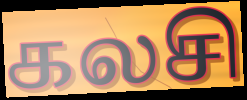
கலசி